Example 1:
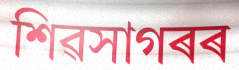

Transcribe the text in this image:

শিৱসাগৰৰ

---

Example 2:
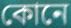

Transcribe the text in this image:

কোনে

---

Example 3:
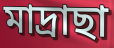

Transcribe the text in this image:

মাদ্ৰাছা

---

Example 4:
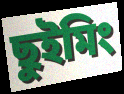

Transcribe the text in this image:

ছুইমিং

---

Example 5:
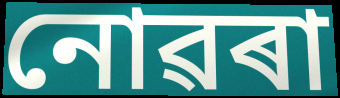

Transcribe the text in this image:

নোৱৰা